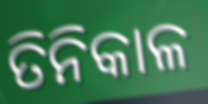
ତିନିକାଳ